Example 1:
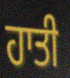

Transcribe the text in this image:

ਹਾਤੀ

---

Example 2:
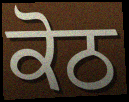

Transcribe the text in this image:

ਕੋਠ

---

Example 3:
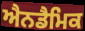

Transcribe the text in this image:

ਐਨਡੈਮਿਕ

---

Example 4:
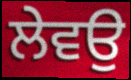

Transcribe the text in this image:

ਲੇਵਉ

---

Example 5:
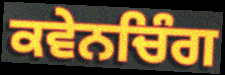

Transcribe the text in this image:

ਕਵੇਨਚਿੰਗ